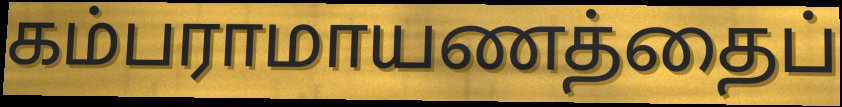
கம்பராமாயணத்தைப்